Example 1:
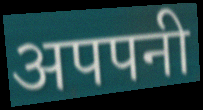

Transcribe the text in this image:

अपपनी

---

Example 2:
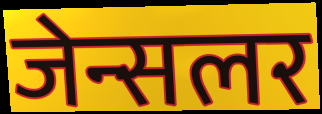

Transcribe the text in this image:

जेन्सलर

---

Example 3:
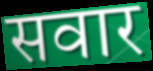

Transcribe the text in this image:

सवार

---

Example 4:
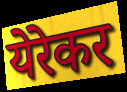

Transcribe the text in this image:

येरेकर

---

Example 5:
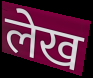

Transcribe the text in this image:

लेख